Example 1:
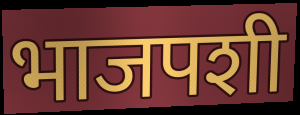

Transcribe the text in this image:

भाजपशी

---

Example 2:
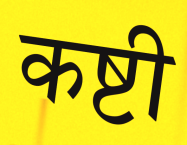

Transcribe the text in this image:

कष्टी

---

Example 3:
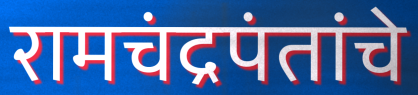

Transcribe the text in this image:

रामचंद्रपंतांचे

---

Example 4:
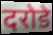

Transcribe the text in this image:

दरोडे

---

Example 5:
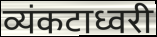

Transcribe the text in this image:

व्यंकटाध्वरी